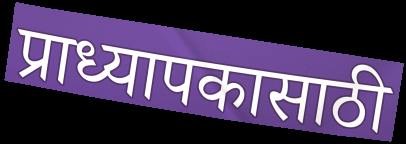
प्राध्यापकासाठी